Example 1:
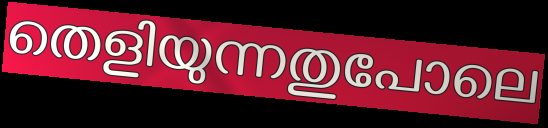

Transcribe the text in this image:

തെളിയുന്നതുപോലെ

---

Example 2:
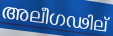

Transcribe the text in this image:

അലീഗഢില്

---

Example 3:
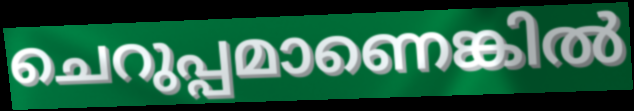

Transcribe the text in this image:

ചെറുപ്പമാണെങ്കിൽ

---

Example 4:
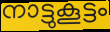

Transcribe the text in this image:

നാട്ടുകൂട്ടം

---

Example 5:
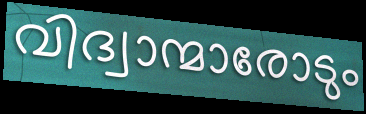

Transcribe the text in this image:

വിദ്വാന്മാരോടും